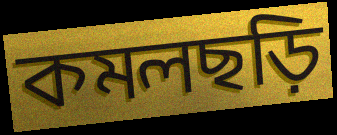
কমলছড়ি